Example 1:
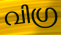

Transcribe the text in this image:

വിഗ്ര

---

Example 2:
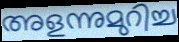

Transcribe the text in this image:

അളന്നുമുറിച്ച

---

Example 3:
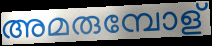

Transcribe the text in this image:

അമരുമ്പോള്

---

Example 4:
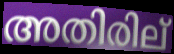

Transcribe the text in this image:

അതിരില്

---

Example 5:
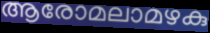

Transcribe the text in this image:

ആരോമലാമഴകു